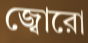
জ্বোরো